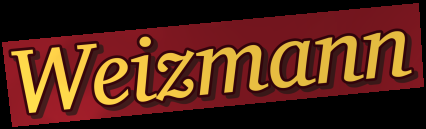
Weizmann